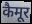
कैमूर